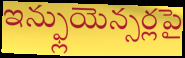
ఇన్ఫ్లుయెన్సర్లపై